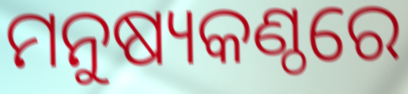
ମନୁଷ୍ୟକଣ୍ଠରେ